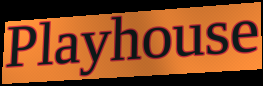
Playhouse